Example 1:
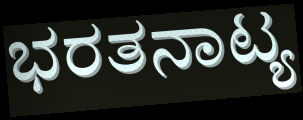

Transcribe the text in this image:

ಭರತನಾಟ್ಯ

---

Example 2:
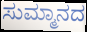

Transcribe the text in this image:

ಸುಮ್ಮಾನದ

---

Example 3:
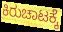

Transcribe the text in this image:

ಕಿರುಚಾಟಕ್ಕೆ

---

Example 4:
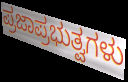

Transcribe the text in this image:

ಪ್ರಜಾಪ್ರಭುತ್ವಗಳು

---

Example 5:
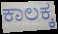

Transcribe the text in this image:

ಕಾಲಕ್ಕ